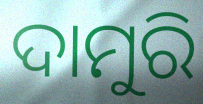
ଦାମୁରି